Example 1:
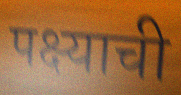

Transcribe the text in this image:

पक्ष्याची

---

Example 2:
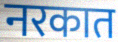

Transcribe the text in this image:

नरकात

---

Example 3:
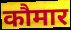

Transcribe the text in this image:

कौमार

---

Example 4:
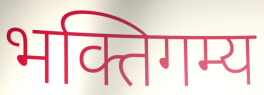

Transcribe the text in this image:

भक्तिगम्य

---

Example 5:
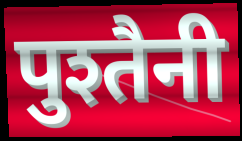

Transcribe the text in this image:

पुश्तैनी